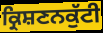
ਕ੍ਰਿਸ਼ਣਨਕੁੱਟੀ